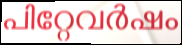
പിറ്റേവർഷം